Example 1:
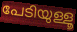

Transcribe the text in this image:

പേടിയുള്ളൂ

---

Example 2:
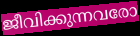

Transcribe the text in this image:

ജീവിക്കുന്നവരോ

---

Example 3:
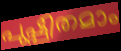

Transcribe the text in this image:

പുഷ്പിതമാം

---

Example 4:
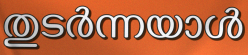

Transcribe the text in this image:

തുടർന്നയാൾ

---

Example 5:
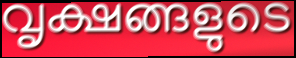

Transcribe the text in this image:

വൃക്ഷങ്ങളുടെ